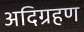
अदिग्रहण